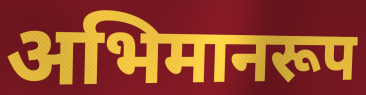
अभिमानरूप